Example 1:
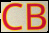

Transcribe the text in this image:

CB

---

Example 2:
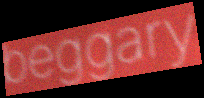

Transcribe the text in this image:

beggary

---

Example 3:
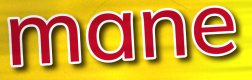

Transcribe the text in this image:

mane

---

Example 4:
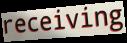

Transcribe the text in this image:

receiving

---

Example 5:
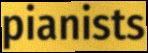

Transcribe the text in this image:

pianists